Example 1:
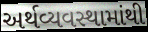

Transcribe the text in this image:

અર્થવ્યવસ્થામાંથી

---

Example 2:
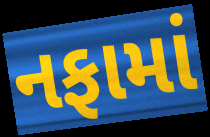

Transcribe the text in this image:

નફામાં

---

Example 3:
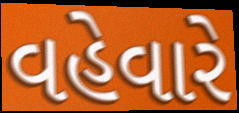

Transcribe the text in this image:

વહેવારે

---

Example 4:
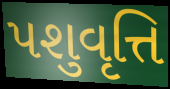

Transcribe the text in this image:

પશુવૃત્તિ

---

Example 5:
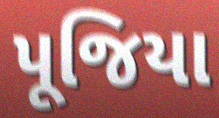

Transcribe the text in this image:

પૂજિયા